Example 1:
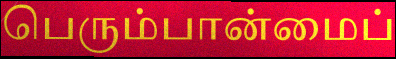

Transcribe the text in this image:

பெரும்பான்மைப்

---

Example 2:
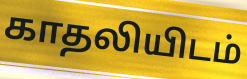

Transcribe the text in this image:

காதலியிடம்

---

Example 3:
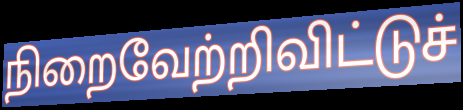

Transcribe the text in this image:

நிறைவேற்றிவிட்டுச்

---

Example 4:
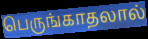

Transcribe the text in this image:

பெருங்காதலால்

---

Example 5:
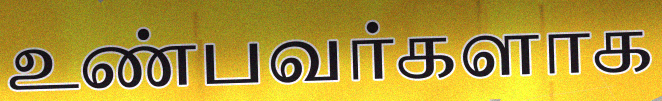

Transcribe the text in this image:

உண்பவர்களாக